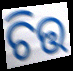
ଚିତ୍ତ